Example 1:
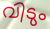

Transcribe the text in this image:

വിടും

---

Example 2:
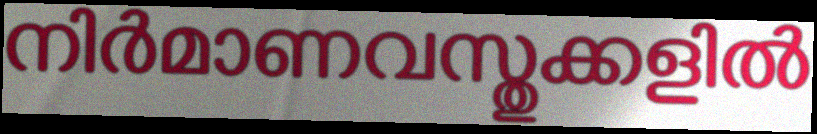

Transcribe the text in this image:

നിർമാണവസ്തുക്കളിൽ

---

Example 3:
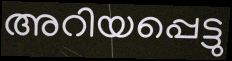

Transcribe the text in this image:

അറിയപ്പെട്ടു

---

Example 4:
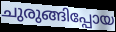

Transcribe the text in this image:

ചുരുങ്ങിപ്പോയ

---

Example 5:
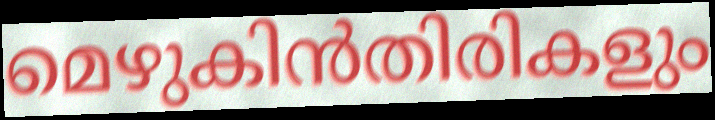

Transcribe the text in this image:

മെഴുകിൻതിരികളും